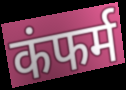
कंफर्म